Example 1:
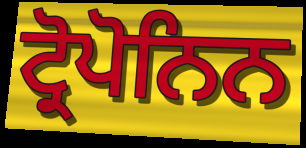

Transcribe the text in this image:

ਟ੍ਰੋਪੋਨਿਨ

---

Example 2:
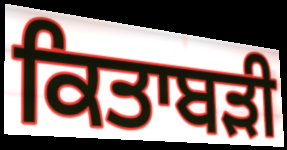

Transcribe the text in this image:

ਕਿਤਾਬੜੀ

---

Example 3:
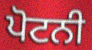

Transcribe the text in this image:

ਪੋਟਨੀ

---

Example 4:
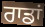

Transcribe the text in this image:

ਰਾਡਾਂ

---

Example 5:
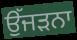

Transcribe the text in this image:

ਉੱਜੜਨਾ